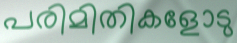
പരിമിതികളോടു